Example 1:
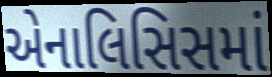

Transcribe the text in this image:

એનાલિસિસમાં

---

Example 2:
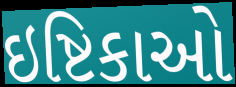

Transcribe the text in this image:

ઇષ્ટિકાઓ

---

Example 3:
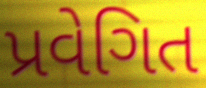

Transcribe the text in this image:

પ્રવેગિત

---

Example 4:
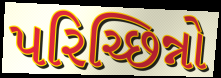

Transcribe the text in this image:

પરિચ્છિન્નો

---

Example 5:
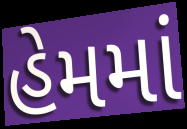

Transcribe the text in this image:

હેમમાં